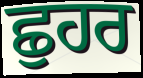
ਛੁਹਰ